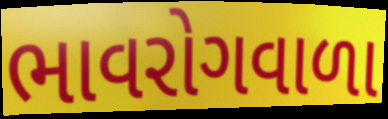
ભાવરોગવાળા